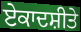
ਏਕਾਦਸ਼ੀਤੇ